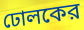
ঢোলকের